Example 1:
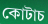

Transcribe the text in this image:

কোটাচ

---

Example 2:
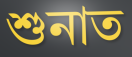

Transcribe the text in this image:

শুনাত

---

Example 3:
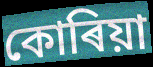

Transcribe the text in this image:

কোৰিয়া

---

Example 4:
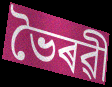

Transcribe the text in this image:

ভৈৰৱী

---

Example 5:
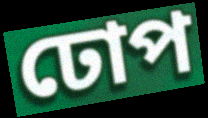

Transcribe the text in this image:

ঢোপ